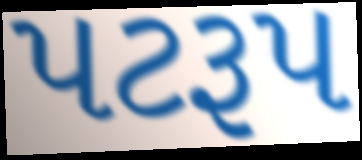
પટરૂપ